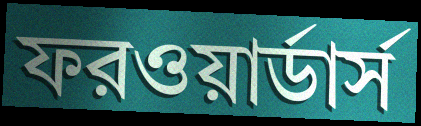
ফরওয়ার্ডার্স